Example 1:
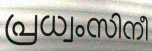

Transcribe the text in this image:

പ്രധ്വംസിനീ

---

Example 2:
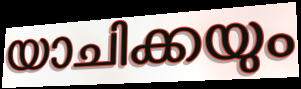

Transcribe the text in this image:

യാചിക്കയും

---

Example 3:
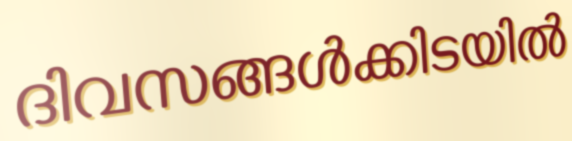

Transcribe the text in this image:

ദിവസങ്ങൾക്കിടയിൽ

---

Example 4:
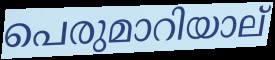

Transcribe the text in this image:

പെരുമാറിയാല്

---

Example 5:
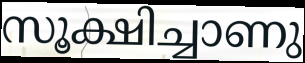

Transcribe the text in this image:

സൂക്ഷിച്ചാണു